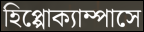
হিপ্পোক্যাম্পাসে